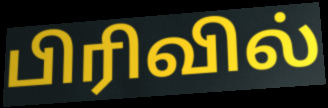
பிரிவில்